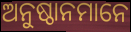
ଅନୁଷ୍ଠାନମାନେ